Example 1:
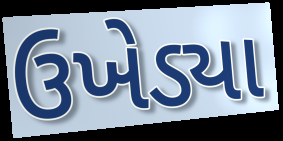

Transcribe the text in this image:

ઉખેડ્યા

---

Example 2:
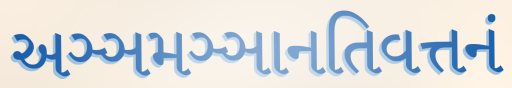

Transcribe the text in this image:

અઞ્ઞમઞ્ઞાનતિવત્તનં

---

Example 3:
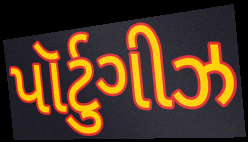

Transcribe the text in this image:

પૉર્ટુગીઝ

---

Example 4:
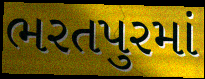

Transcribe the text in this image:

ભરતપુરમાં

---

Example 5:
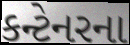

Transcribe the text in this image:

કન્ટેનરના